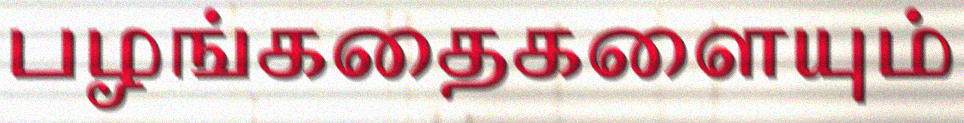
பழங்கதைகளையும்